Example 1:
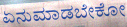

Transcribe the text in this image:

ಏನುಮಾಡಬೇಕೋ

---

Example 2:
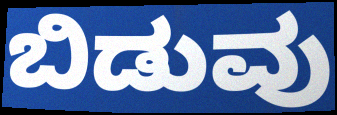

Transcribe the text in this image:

ಬಿಡುವು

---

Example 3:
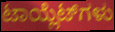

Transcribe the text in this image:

ಟಾಯ್ಲೆಟ್‌ಗಳು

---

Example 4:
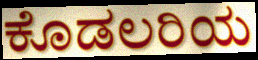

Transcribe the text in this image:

ಕೊಡಲರಿಯ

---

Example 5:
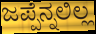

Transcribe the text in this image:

ಜಪ್ಪೆನ್ನಲಿಲ್ಲ